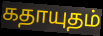
கதாயுதம்